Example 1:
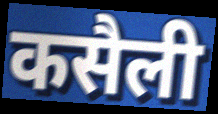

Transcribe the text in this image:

कसैली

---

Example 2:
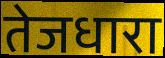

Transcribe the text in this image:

तेजधारा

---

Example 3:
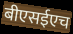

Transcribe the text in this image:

बीएसईएच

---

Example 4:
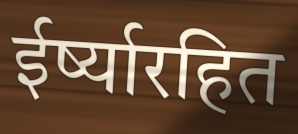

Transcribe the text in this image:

ईर्ष्यारहित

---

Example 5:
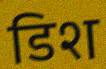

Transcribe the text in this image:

डिश